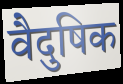
वैदुषिक